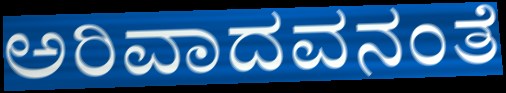
ಅರಿವಾದವನಂತೆ